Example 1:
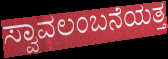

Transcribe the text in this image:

ಸ್ವಾವಲಂಬನೆಯತ್ತ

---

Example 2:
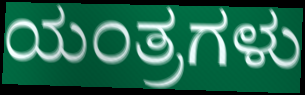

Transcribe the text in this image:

ಯಂತ್ರಗಳು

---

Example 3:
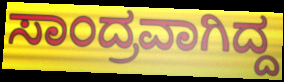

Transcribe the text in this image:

ಸಾಂದ್ರವಾಗಿದ್ದ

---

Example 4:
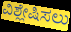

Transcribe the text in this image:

ವಿಶ್ಲೇಷಿಸಲು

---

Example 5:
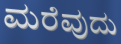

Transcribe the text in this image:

ಮರೆವುದು